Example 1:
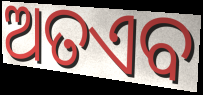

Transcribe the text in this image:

ଅତଏବ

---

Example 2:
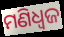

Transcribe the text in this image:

ମଣିଧ୍ୱଜ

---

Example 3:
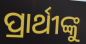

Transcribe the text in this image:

ପ୍ରାର୍ଥୀଙ୍କୁ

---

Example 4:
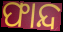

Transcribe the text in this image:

ଫାନ୍ଦ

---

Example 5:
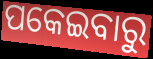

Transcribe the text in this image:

ପକେଇବାରୁ